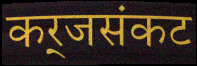
कर्जसंकट